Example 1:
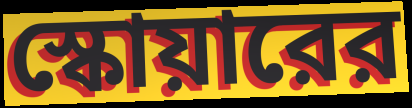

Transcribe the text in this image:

স্কোয়ারের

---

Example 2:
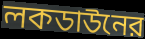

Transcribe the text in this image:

লকডাউনের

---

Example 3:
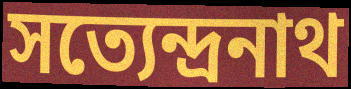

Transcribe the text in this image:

সত্যেন্দ্রনাথ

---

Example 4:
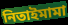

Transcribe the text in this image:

নিতাইমামা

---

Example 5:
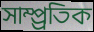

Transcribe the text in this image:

সাম্প্র্রতিক